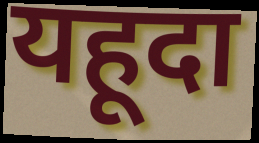
यहूदा